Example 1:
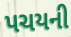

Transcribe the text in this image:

પચયની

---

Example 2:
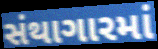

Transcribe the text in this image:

સંથાગારમાં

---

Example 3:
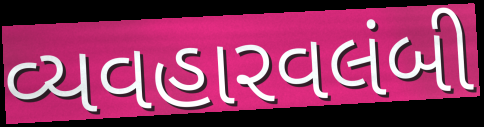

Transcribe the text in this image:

વ્યવહારવલંબી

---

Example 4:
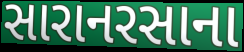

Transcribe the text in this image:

સારાનરસાના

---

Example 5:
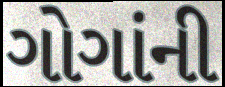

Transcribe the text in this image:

ગોગાંની